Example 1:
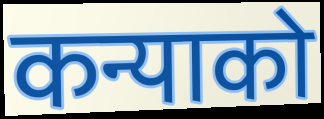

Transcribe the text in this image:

कन्याको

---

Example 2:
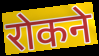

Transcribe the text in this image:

रोकने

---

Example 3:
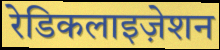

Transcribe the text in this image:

रेडिकलाइज़ेशन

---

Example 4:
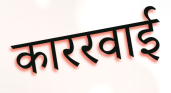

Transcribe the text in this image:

काररवाई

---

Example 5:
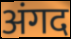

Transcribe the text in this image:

अंगद